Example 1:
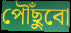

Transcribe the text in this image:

পৌঁছুবো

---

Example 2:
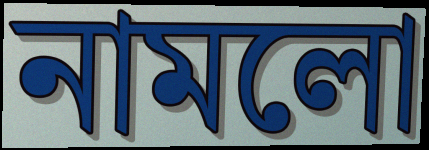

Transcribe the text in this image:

নামলো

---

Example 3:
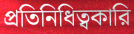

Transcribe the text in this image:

প্রতিনিধিত্বকারি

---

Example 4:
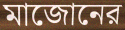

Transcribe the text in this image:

মাজোনের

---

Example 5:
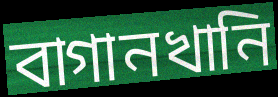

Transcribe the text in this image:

বাগানখানি